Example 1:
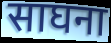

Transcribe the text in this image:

साघना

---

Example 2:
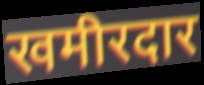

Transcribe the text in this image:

खमीरदार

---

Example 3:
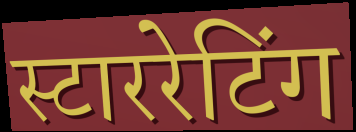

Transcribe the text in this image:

स्टाररेटिंग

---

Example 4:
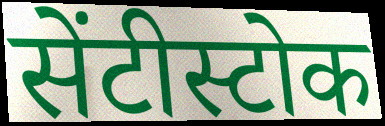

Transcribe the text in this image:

सेंटीस्टोक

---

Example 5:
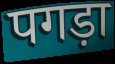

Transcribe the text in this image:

पगड़ा